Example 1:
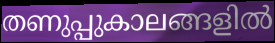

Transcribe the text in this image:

തണുപ്പുകാലങ്ങളിൽ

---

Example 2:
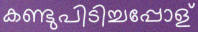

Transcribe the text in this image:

കണ്ടുപിടിച്ചപ്പോള്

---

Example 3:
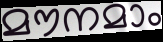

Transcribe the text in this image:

മൗനമാം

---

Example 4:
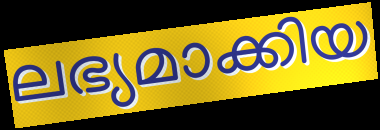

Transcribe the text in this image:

ലഭ്യമാക്കിയ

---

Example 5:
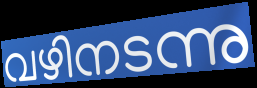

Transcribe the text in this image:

വഴിനടന്നു